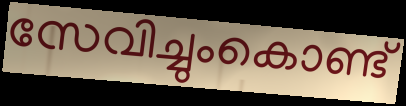
സേവിച്ചുംകൊണ്ട്